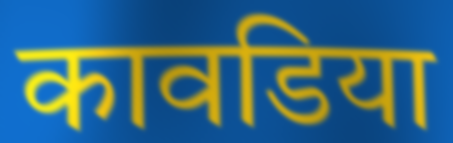
कावडिया